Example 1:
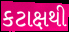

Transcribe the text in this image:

કટાક્ષથી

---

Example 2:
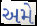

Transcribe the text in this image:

અમે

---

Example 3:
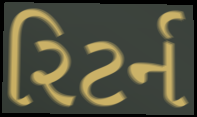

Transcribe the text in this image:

રિટર્ન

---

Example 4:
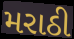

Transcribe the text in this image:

મરાઠી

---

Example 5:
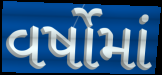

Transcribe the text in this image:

વર્ષોમાં